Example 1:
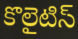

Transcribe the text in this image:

కొలైటిస్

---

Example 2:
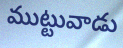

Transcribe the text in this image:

ముట్టువాడు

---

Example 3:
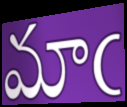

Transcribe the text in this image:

మాఁ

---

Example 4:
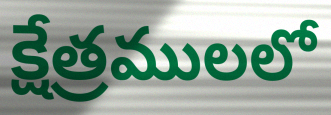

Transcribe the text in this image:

క్షేత్రములలో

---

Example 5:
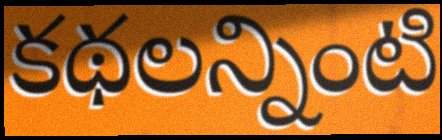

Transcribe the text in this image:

కథలన్నింటి